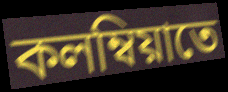
কলম্বিয়াতে